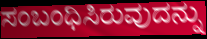
ಸಂಬಂಧಿಸಿರುವುದನ್ನು